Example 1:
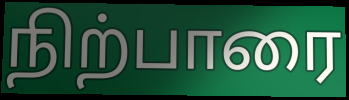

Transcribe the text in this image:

நிற்பாரை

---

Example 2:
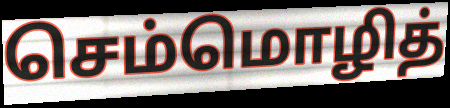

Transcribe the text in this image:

செம்மொழித்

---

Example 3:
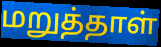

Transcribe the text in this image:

மறுத்தாள்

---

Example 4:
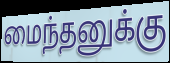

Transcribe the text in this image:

மைந்தனுக்கு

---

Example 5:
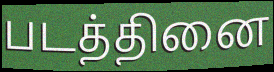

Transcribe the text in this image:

படத்தினை